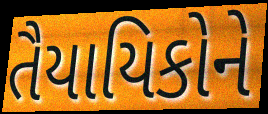
તૈયાયિકોને